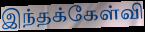
இந்தக்கேள்வி